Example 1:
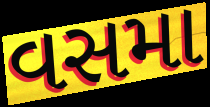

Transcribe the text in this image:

વસમા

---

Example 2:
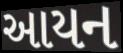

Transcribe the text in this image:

આયન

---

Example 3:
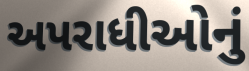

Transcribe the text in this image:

અપરાધીઓનું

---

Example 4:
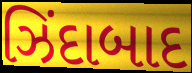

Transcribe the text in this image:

ઝિંદાબાદ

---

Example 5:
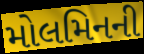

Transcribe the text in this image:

મોલમિનની